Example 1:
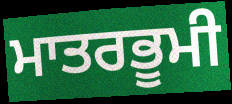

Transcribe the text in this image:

ਮਾਤਰਭੂਮੀ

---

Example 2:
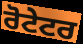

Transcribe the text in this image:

ਰੋਟੇਟਰ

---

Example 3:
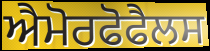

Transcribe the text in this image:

ਐਮੋਰਫੋਫੈਲਸ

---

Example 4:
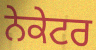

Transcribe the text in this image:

ਨੇਕੇਟਰ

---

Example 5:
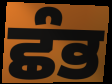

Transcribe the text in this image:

ਛੰਭ